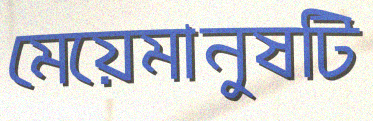
মেয়েমানুষটি